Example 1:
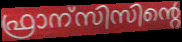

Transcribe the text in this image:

ഫ്രാന്സിസിന്റെ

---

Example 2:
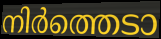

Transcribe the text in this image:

നിർത്തെടാ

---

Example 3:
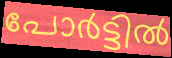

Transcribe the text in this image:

പോർട്ടിൽ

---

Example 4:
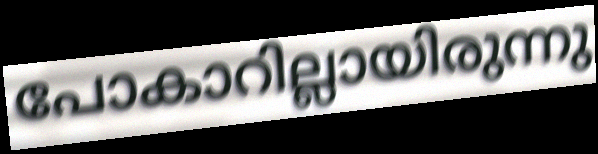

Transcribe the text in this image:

പോകാറില്ലായിരുന്നു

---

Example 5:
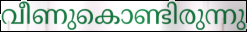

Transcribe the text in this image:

വീണുകൊണ്ടിരുന്നു